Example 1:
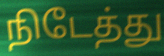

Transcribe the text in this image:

நிடேத்து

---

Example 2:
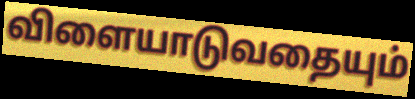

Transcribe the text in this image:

விளையாடுவதையும்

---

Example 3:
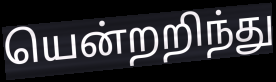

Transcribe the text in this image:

யென்றறிந்து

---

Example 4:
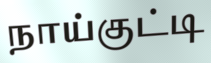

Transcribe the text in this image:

நாய்குட்டி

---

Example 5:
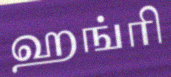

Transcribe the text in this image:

ஹங்ரி